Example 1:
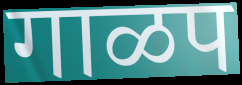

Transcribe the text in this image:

गाळप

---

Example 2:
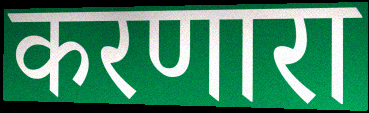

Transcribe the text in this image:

करणारा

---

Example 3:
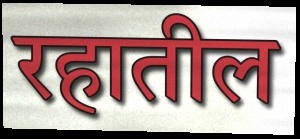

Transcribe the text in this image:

रहातील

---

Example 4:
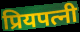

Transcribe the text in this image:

प्रियपत्नी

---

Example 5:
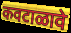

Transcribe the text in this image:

कवटाळावे